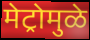
मेट्रोमुळे